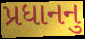
પ્રધાનનુ